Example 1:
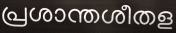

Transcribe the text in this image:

പ്രശാന്തശീതള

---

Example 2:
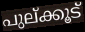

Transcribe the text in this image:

പുല്ക്കൂട്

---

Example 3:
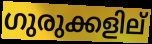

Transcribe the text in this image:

ഗുരുക്കളില്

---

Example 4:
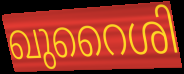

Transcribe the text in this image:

ഖുറൈശി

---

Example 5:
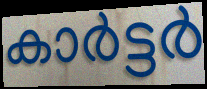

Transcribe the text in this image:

കാർട്ടർ